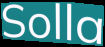
Solla